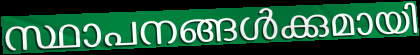
സ്ഥാപനങ്ങൾക്കുമായി